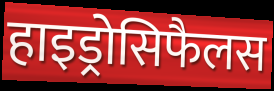
हाइड्रोसिफैलस